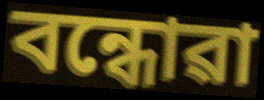
বন্ধোৱা